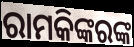
ରାମକିଙ୍କରଙ୍କ